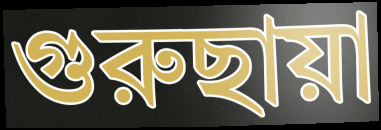
গুরুছায়া